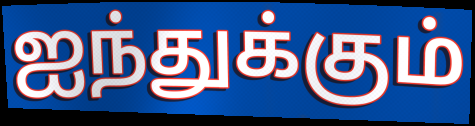
ஐந்துக்கும்